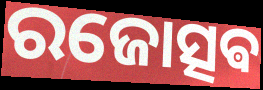
ରଜୋତ୍ସଵ